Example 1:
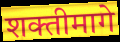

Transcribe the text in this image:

शक्तीमागे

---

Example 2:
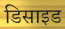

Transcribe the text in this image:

डिसाइड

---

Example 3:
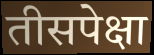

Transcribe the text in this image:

तीसपेक्षा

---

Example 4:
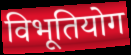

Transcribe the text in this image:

विभूतियोग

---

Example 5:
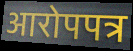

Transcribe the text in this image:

आरोपपत्र